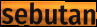
sebutan